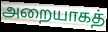
அறையாகத்